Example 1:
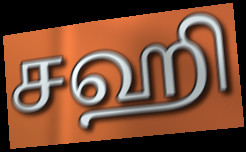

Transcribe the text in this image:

சஹி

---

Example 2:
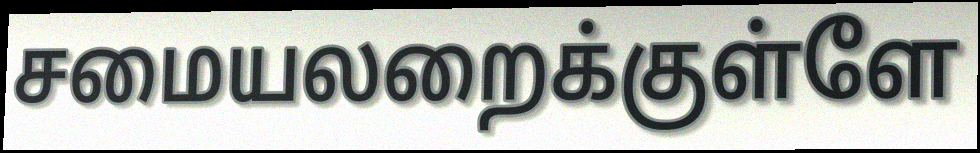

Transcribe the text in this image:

சமையலறைக்குள்ளே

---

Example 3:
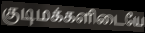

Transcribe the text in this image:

குடிமக்களிடையே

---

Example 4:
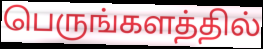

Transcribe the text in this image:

பெருங்களத்தில்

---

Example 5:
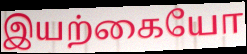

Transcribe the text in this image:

இயற்கையோ